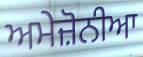
ਅਮੇਜ਼ੋਨੀਆ